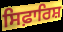
ਸਿਫ਼ਾਰਿਸ਼